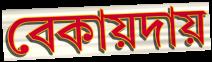
বেকায়দায়